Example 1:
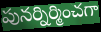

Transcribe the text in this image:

పునర్నిర్మించగా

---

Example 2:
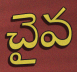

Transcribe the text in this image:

చైవ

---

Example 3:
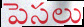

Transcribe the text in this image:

పెసలు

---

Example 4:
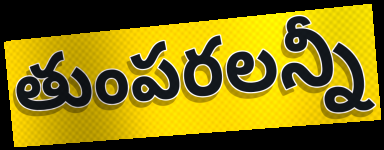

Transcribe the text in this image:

తుంపరలన్నీ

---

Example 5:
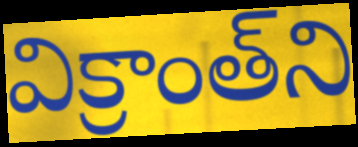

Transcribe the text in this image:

విక్రాంత్‌ని